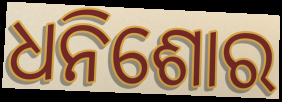
ଧନିଶୋର